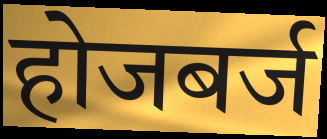
होजबर्ज